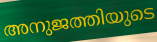
അനുജത്തിയുടെ